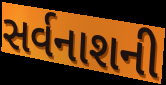
સર્વનાશની